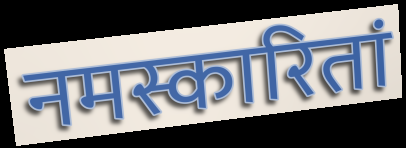
नमस्कारितां